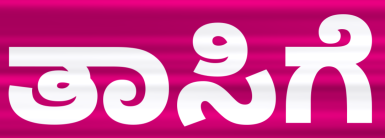
ತಾಸಿಗೆ